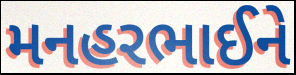
મનહરભાઈને